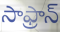
సాఫ్రాన్